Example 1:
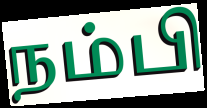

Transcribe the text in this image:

நம்பி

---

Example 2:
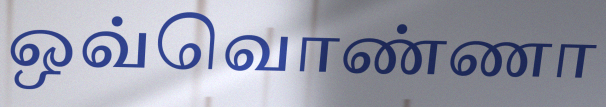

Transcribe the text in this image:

ஒவ்வொண்ணா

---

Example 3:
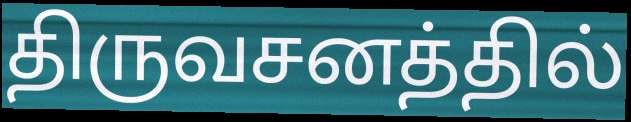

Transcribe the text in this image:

திருவசனத்தில்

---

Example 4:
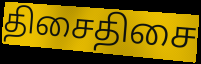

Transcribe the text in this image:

திசைதிசை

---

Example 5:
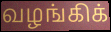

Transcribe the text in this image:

வழங்கிக்